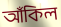
আঁকিল